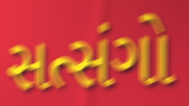
સત્સંગો